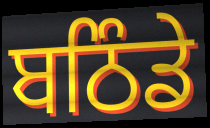
ਬਠਿੰਡੇ